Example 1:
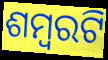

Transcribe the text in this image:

ଶମ୍ବରଟି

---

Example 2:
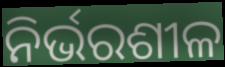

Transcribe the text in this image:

ନିର୍ଭରଶୀଳ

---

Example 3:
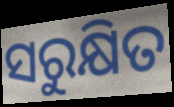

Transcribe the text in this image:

ସରୁକ୍ଷିତ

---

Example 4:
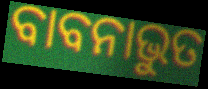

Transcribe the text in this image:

ବାବନାଭୁତ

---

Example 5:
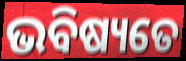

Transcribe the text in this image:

ଭବିଷ୍ୟତେ